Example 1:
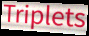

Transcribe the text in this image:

Triplets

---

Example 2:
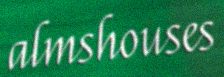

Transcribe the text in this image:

almshouses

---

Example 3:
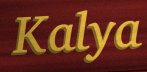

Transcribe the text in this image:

Kalya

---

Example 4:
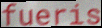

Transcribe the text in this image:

fueris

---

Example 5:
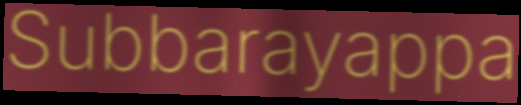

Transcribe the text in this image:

Subbarayappa